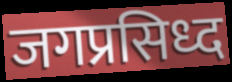
जगप्रसिध्द